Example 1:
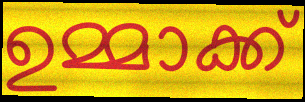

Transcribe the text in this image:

ഉമ്മാക്ക്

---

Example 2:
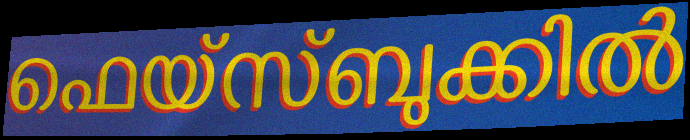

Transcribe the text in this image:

ഫെയ്സ്ബുക്കിൽ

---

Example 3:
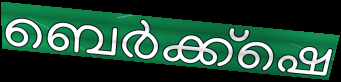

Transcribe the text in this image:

ബെർക്ക്ഷെ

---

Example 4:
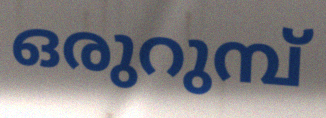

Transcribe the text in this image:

ഒരുറുമ്പ്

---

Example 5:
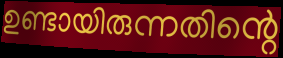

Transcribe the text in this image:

ഉണ്ടായിരുന്നതിന്റെ